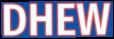
DHEW